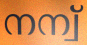
നന്വ്